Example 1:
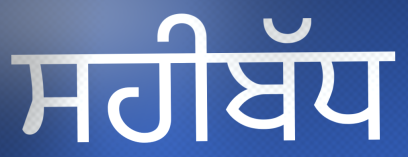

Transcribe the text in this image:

ਸਹੀਬੱਧ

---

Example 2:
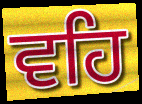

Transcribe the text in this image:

ਵਹਿ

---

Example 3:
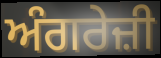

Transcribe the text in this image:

ਅੰਗਰੇਜ਼ੀ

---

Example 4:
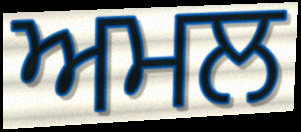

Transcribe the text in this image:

ਅਮਲ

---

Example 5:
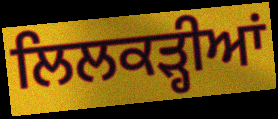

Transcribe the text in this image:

ਲਿਲਕੜ੍ਹੀਆਂ